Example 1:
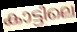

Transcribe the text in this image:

കാട്ടിലെ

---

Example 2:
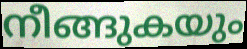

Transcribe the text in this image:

നീങ്ങുകയും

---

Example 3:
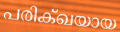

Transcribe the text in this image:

പരിക്ഖയായ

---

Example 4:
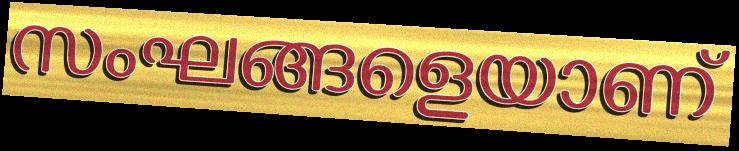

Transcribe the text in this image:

സംഘങ്ങളെയാണ്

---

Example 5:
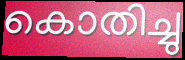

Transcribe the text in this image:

കൊതിച്ചു